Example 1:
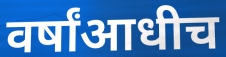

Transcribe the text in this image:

वर्षांआधीच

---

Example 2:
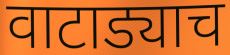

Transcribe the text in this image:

वाटाड्याच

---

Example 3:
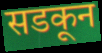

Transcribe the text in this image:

सडकून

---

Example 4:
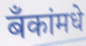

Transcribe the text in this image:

बँकांमधे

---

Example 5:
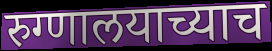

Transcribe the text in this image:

रुग्णालयाच्याच